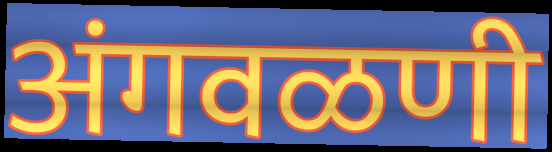
अंगवळणी